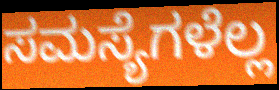
ಸಮಸ್ಯೆಗಳೆಲ್ಲ